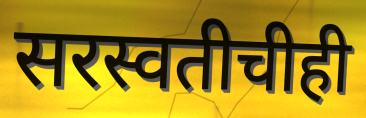
सरस्वतीचीही